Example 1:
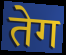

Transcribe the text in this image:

तेग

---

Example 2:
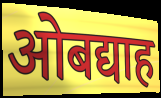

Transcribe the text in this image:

ओबद्याह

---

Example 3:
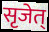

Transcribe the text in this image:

सृजेत्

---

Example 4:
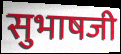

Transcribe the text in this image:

सुभाषजी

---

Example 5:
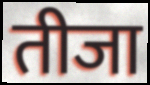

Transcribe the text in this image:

तीजा